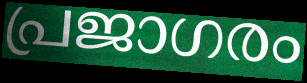
പ്രജാഗരം